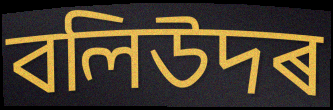
বলিউদৰ